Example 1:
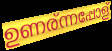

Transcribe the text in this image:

ഉണര്ന്നപ്പോള്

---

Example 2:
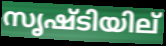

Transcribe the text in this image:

സൃഷ്ടിയില്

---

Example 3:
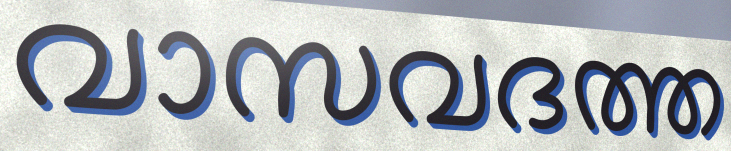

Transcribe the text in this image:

വാസവദത്ത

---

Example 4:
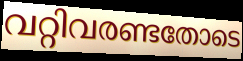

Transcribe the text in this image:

വറ്റിവരണ്ടതോടെ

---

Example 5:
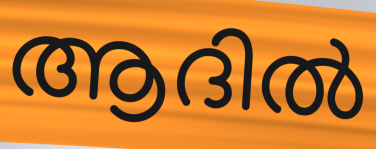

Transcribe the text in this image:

ആദിൽ